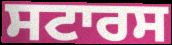
ਸਟਾਰਸ